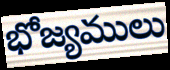
భోజ్యములు